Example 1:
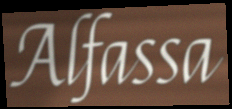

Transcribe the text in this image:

Alfassa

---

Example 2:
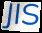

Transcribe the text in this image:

JIS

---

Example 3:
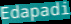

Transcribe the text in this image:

Edapadi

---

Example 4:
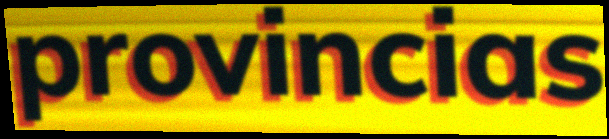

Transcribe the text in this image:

provincias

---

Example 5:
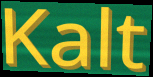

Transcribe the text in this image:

Kalt